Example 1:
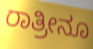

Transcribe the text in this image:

ರಾತ್ರೀನೂ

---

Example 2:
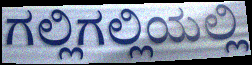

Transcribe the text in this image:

ಗಲ್ಲಿಗಲ್ಲಿಯಲ್ಲಿ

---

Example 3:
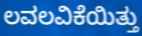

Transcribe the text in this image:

ಲವಲವಿಕೆಯಿತ್ತು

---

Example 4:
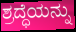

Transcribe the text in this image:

ಶ್ರದ್ಧೆಯನ್ನು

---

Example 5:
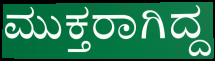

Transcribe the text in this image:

ಮುಕ್ತರಾಗಿದ್ದ